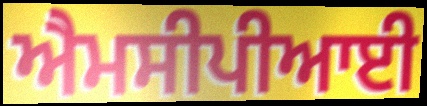
ਐਮਸੀਪੀਆਈ